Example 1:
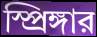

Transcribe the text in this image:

স্প্রিঙ্গার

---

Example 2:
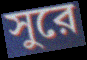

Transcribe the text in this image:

সুরে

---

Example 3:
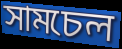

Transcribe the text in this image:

সামচেল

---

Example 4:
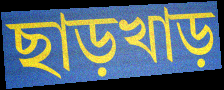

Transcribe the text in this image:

ছাড়খাড়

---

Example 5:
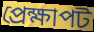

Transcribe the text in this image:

প্রেক্ষাপট